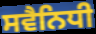
ਸਵੈਨਿਧੀ